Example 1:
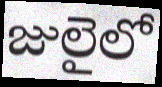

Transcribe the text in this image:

జులైలో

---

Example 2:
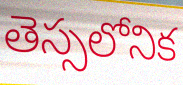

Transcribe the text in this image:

తెస్సలోనిక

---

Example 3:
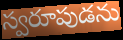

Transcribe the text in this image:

స్వరూపుడను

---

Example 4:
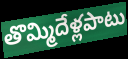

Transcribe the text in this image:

తొమ్మిదేళ్లపాటు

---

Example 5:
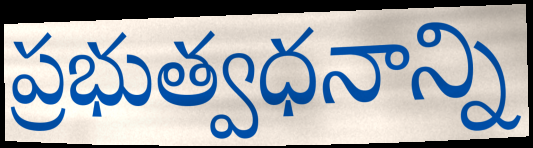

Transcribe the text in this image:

ప్రభుత్వధనాన్ని